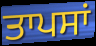
ਤਾਪਸਾਂ